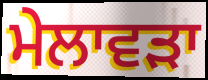
ਮੇਲਾਵੜਾ